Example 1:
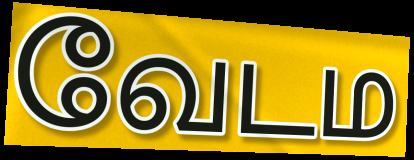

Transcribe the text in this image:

வேடம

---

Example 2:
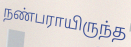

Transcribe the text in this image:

நண்பராயிருந்த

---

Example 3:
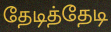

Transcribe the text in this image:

தேடித்தேடி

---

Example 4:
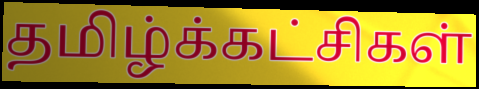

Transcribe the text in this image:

தமிழ்க்கட்சிகள்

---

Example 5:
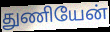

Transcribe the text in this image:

துணியேன்